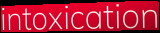
intoxication